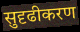
सुदृढीकरण